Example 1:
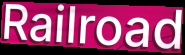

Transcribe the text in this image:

Railroad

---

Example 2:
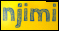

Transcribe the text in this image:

njimi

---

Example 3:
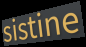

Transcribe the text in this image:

sistine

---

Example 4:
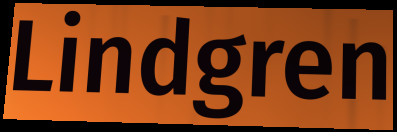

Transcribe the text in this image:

Lindgren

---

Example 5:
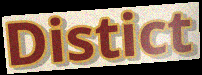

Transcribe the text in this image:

Distict